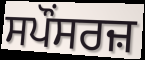
ਸਪੌਂਸਰਜ਼